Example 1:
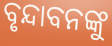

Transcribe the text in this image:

ବୃନ୍ଦାବନଙ୍କୁ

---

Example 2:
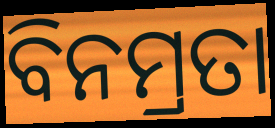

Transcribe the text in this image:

ବିନମ୍ରତା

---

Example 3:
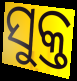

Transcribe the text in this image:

ସୁକ୍ତ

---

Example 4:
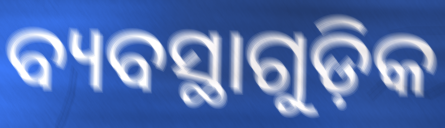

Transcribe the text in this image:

ବ୍ୟବସ୍ଥାଗୁଡ଼ିକ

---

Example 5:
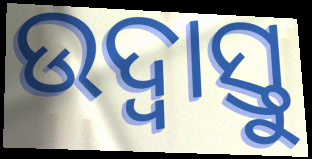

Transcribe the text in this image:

ଉଦ୍ବାସ୍ତୁ